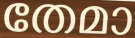
തേമാ